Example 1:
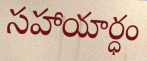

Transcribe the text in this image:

సహాయార్ధం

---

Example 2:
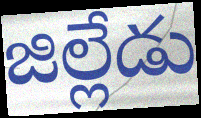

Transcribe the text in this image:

జిల్లేడు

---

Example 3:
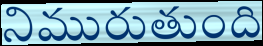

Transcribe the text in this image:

నిమురుతుంది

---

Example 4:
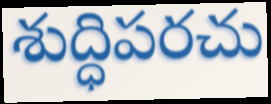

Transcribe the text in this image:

శుద్ధిపరచు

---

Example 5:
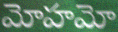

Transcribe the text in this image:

మోహమో